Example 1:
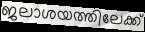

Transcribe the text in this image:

ജലാശയത്തിലേക്ക്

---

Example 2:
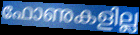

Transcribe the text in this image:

ഫോണുകളില്ല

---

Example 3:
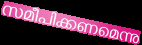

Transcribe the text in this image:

സമീപിക്കണമെന്നു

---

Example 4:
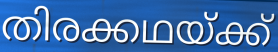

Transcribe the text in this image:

തിരക്കഥയ്ക്ക്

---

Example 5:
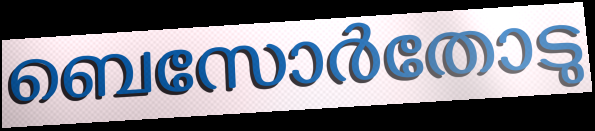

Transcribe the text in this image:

ബെസോർതോടു